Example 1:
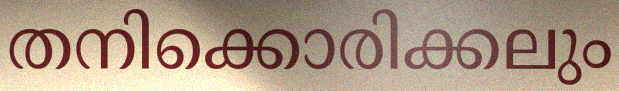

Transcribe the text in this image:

തനിക്കൊരിക്കലും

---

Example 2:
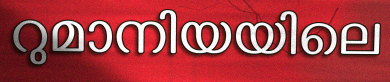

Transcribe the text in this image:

റുമാനിയയിലെ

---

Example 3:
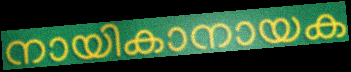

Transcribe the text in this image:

നായികാനായക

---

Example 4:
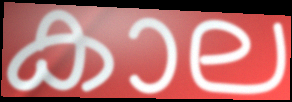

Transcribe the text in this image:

കാല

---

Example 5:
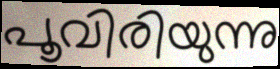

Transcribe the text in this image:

പൂവിരിയുന്നു